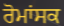
ਰੋਮਾਂਸਕ